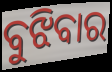
ବୁଝିବାର